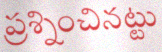
ప్రశ్నించినట్టు